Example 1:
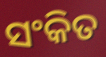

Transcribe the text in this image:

ସଂକିତ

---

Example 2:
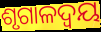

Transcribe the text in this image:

ଶୃଗାଳଦ୍ୱୟ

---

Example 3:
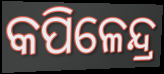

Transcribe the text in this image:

କପିଳେନ୍ଦ୍ର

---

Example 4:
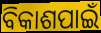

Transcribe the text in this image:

ବିକାଶପାଇଁ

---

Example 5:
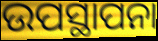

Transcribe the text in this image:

ଉପସ୍ଥାପନା